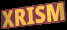
XRISM